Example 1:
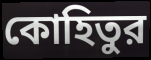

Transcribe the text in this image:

কোহিতুর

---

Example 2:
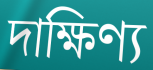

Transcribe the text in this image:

দাক্ষিণ্য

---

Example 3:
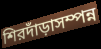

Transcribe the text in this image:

শিরদাঁড়াসম্পন্ন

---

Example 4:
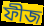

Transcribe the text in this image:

ফীজ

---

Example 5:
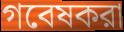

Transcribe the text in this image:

গবেষকরা